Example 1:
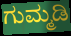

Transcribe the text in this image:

ಗುಮ್ಮಡಿ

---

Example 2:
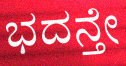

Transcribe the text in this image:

ಭದನ್ತೇ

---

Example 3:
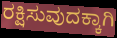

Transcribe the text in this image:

ರಕ್ಷಿಸುವುದಕ್ಕಾಗಿ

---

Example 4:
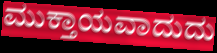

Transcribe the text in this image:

ಮುಕ್ತಾಯವಾದುದು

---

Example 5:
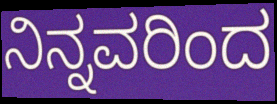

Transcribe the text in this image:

ನಿನ್ನವರಿಂದ